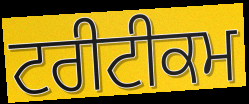
ਟਰੀਟੀਕਮ